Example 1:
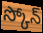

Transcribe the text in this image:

స్కోన్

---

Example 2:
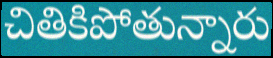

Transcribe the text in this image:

చితికిపోతున్నారు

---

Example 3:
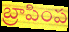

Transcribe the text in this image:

బ్రాపింప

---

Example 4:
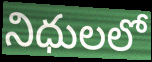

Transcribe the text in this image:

నిధులలో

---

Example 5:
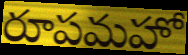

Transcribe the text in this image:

రూపమహో